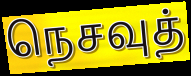
நெசவுத்